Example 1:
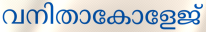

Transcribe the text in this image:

വനിതാകോളേജ്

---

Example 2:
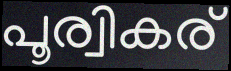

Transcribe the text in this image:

പൂര്വികര്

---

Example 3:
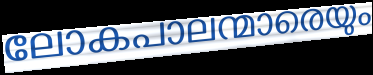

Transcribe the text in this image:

ലോകപാലന്മാരെയും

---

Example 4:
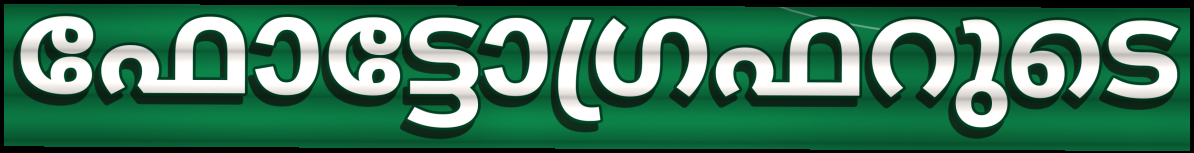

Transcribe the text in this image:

ഫോട്ടോഗ്രഫറുടെ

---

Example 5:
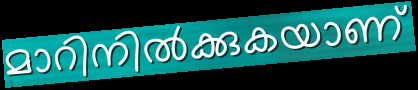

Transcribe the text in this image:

മാറിനിൽക്കുകയാണ്